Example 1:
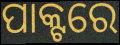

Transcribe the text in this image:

ପାକ୍ଟରେ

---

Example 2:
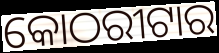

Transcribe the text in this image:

କୋଠରୀଟାର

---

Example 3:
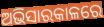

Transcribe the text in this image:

ଅଭିସାରକାଳରେ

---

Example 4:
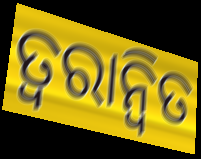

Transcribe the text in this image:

ତ୍ୱରାନ୍ଵିତ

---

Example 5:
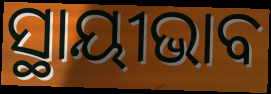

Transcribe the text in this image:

ସ୍ଥାୟୀଭାବ